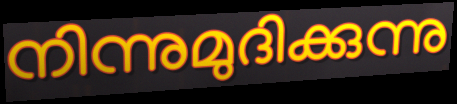
നിന്നുമുദിക്കുന്നു